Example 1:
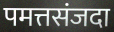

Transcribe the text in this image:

पमत्तसंजदा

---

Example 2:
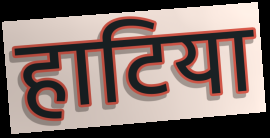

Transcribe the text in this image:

हाटिया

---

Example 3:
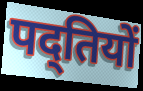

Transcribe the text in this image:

पद्तियों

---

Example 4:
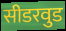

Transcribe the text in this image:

सीडरवुड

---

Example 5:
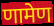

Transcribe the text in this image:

णामेण